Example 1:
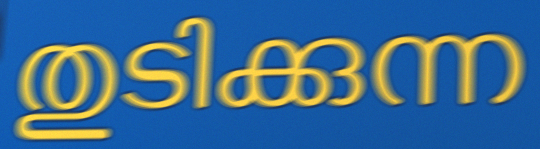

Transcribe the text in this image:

തുടിക്കുന്ന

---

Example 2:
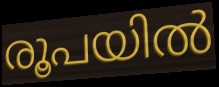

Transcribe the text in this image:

രൂപയിൽ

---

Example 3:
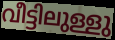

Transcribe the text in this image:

വീട്ടിലുള്ളു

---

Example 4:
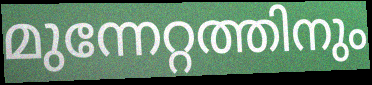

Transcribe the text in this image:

മുന്നേറ്റത്തിനും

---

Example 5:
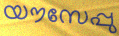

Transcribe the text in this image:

യൗസേപ്പു